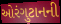
ઓરંગુટાનની